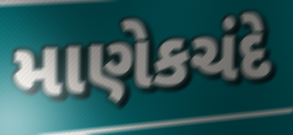
માણેકચંદે